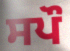
ਸਪੌ